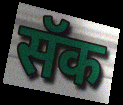
सॅक